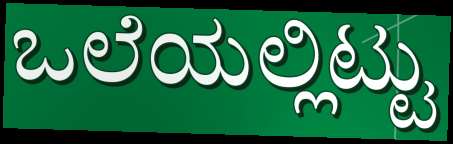
ಒಲೆಯಲ್ಲಿಟ್ಟು